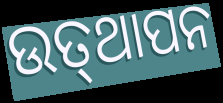
ଉତ୍‌ଥାପନ